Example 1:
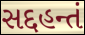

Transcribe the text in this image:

સદ્દહન્તં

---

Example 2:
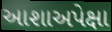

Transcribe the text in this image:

આશાઅપેક્ષા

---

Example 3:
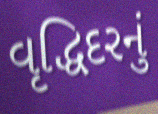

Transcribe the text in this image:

વૃદ્ધિદરનું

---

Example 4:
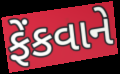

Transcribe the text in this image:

ફેંકવાને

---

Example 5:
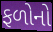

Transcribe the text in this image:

ફળોનો